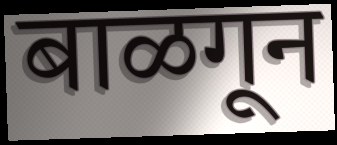
बाळगून